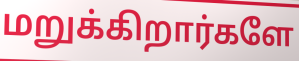
மறுக்கிறார்களே